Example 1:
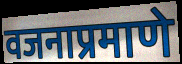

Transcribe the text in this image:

वजनाप्रमाणे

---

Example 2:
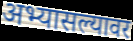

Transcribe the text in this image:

अभ्यासल्यावर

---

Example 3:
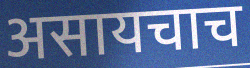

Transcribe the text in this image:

असायचाच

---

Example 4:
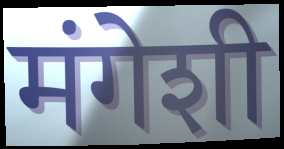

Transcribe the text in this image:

मंगेशी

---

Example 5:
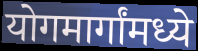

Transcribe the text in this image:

योगमार्गांमध्ये